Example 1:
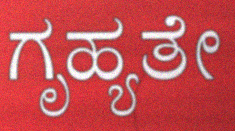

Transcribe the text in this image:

ಗೃಹ್ಯತೇ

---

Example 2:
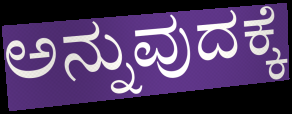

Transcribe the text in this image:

ಅನ್ನುವುದಕ್ಕೆ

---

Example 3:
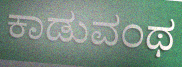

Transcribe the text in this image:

ಕಾಡುವಂಥ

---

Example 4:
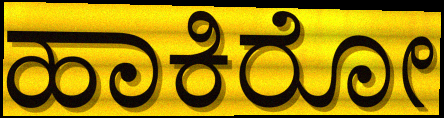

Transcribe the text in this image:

ಹಾಕಿರೋ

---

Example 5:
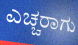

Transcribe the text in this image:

ಎಚ್ಚರಾಗು